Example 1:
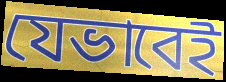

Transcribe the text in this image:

যেভাবেই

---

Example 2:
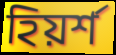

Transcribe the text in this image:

হিয়র্শ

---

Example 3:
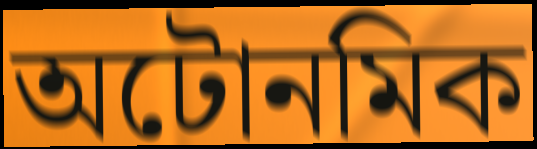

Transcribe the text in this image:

অটোনমিক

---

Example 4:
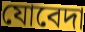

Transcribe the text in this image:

যোবেদা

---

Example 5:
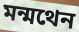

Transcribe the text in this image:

মন্মথেন